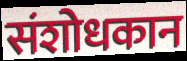
संशोधकान